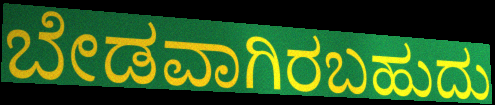
ಬೇಡವಾಗಿರಬಹುದು